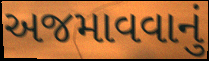
અજમાવવાનું